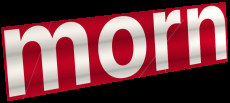
morn